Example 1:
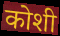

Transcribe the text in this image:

कोशी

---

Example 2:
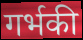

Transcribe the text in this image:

गर्भकी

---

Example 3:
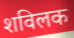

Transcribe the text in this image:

शविलक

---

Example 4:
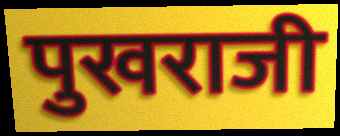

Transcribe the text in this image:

पुखराजी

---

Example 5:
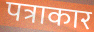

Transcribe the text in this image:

पत्राकार